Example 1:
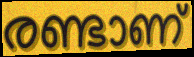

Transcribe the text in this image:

രണ്ടാണ്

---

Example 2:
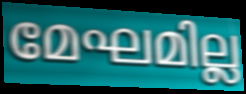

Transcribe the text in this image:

മേഘമില്ല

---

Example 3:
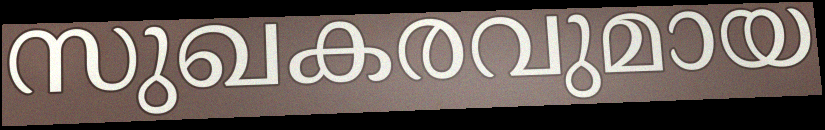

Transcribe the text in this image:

സുഖകരവുമായ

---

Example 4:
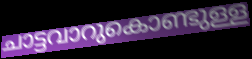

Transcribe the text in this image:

ചാട്ടവാറുകൊണ്ടുള്ള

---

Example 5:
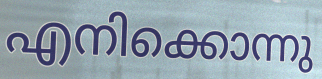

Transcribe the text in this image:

എനിക്കൊന്നു